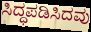
ಸಿದ್ಧಪಡಿಸಿದವು